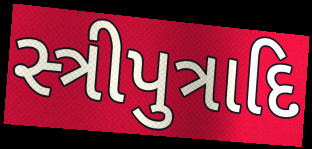
સ્ત્રીપુત્રાદિ